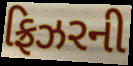
ફ્રિઝરની